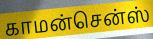
காமன்சென்ஸ்